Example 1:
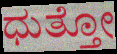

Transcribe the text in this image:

ಧುತ್ತೋ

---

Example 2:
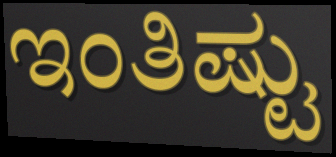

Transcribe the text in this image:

ಇಂತಿಷ್ಟು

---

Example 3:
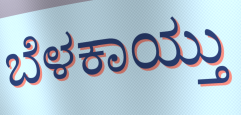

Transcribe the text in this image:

ಬೆಳಕಾಯ್ತು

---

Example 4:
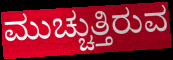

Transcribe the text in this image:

ಮುಚ್ಚುತ್ತಿರುವ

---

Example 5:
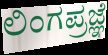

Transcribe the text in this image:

ಲಿಂಗಪ್ರಜ್ಞೆ